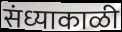
संध्‍याकाळी